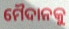
ମୈଦାନକୁ